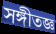
সঙ্গীতজ্ঞ